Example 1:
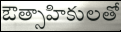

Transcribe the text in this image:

ఔత్సాహికులతో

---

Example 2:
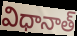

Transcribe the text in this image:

విధానాత్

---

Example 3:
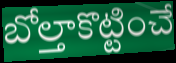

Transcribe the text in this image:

బోల్తాకొట్టించే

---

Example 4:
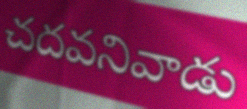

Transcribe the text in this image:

చదవనివాడు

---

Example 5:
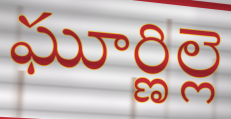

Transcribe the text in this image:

ఘూర్ణిల్లె